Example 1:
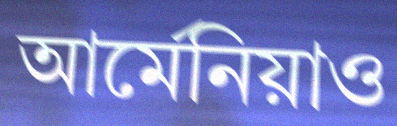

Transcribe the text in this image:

আর্মেনিয়াও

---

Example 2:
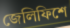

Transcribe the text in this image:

জেলিফিশে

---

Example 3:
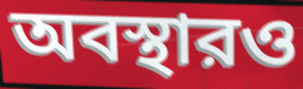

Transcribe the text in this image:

অবস্থারও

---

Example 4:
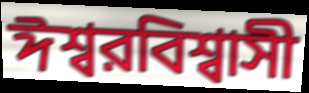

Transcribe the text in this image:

ঈশ্বরবিশ্বাসী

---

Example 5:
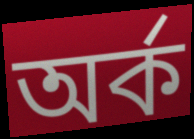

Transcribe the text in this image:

অর্ক